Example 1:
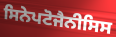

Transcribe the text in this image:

ਸਿਨੇਪਟੋਜੈਨੀਸਿਸ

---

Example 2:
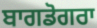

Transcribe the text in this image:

ਬਾਗਡੋਗਰਾ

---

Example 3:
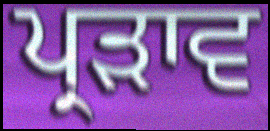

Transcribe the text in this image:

ਪ੍ਰੜਾਵ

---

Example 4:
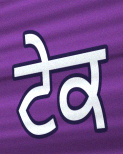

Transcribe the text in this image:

ਟੇਕ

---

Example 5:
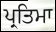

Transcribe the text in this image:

ਪ੍ਰਤਿਮਾ